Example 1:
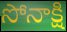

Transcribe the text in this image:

సోనాక్షి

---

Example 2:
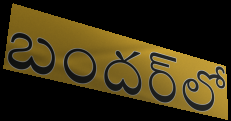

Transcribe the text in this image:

బందర్‌లో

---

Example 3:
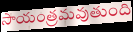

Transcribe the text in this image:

సాయంత్రమవుతుంది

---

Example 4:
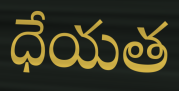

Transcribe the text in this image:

ధేయత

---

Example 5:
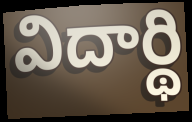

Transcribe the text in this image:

విదార్థి